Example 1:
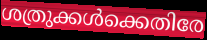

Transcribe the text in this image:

ശത്രുക്കൾക്കെതിരേ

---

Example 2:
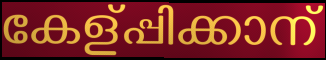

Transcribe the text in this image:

കേള്പ്പിക്കാന്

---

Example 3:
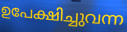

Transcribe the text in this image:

ഉപേക്ഷിച്ചുവന്ന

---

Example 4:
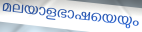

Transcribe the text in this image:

മലയാളഭാഷയെയും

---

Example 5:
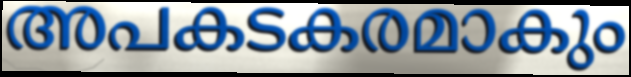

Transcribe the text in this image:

അപകടകരമാകും